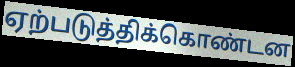
ஏற்படுத்திக்கொண்டன